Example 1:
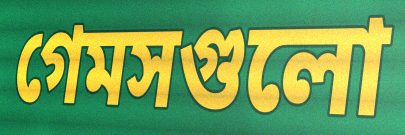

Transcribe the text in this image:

গেমসগুলো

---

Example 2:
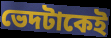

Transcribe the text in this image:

ভেদটাকেই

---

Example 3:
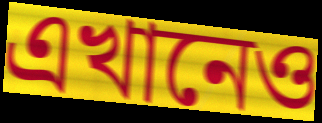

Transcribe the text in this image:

এখানেও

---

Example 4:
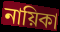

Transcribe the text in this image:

নায়িকা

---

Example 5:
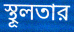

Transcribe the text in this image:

স্থূলতার